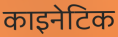
काइनेटिक